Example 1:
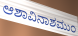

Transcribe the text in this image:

ಆಶಾವಿನಾಶಮುಂ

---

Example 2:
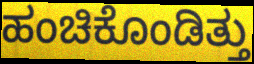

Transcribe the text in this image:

ಹಂಚಿಕೊಂಡಿತ್ತು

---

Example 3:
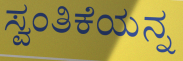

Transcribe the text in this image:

ಸ್ವಂತಿಕೆಯನ್ನ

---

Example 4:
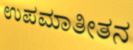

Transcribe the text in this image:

ಉಪಮಾತೀತನ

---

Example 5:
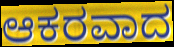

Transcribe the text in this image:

ಆಕರವಾದ